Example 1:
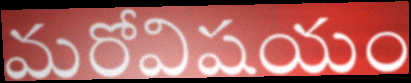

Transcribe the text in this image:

మరోవిషయం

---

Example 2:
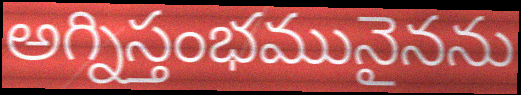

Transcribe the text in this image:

అగ్నిస్తంభమునైనను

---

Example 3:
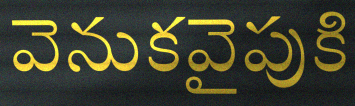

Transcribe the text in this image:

వెనుకవైపుకి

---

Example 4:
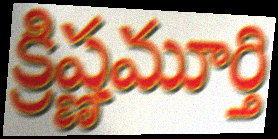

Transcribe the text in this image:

క్రిష్ణమూర్తి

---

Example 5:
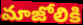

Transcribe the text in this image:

మాజోలికి